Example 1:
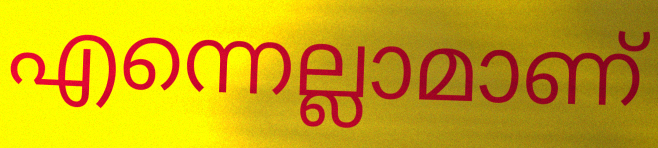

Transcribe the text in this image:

എന്നെല്ലാമാണ്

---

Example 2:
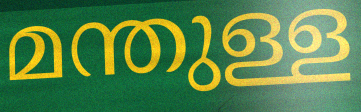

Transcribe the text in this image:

മന്തുള്ള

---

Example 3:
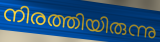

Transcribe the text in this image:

നിരത്തിയിരുന്നു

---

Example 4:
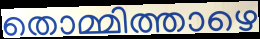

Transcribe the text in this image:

തൊമ്മിത്താഴെ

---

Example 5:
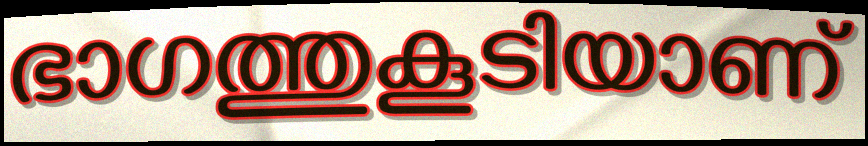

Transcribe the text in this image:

ഭാഗത്തുകൂടിയാണ്